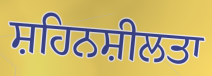
ਸ਼ਹਿਨਸ਼ੀਲਤਾ